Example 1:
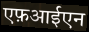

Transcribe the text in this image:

एफ़आईएन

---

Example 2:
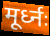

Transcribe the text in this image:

मूर्ध्नः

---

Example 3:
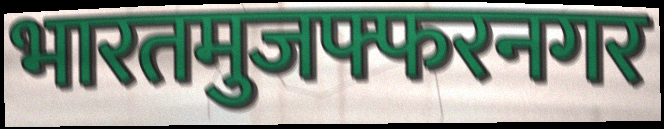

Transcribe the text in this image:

भारतमुजफ्फरनगर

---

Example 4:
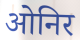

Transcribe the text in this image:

ओनिर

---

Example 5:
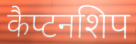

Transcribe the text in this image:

कैप्टनशिप